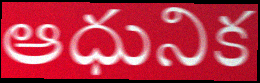
ఆధునిక